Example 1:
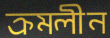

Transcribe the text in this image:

ক্রমলীন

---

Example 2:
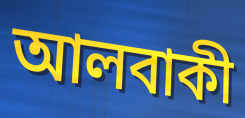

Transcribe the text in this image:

আলবাকী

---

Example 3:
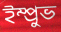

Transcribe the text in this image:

ইম্প্রুভ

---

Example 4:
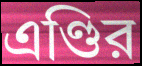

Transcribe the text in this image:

এণ্ডির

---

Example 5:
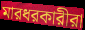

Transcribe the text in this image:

মারধরকারীরা